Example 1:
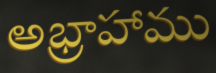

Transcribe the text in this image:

అభ్రాహాము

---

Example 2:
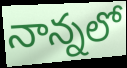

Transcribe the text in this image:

నాన్నలో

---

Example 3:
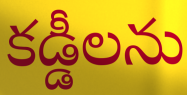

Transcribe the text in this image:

కడ్డీలను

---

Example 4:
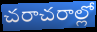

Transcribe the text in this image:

చరాచరాల్లో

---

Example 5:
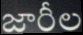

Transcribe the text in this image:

జారీల